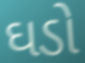
ઘડો